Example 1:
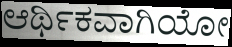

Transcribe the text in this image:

ಆರ್ಥಿಕವಾಗಿಯೋ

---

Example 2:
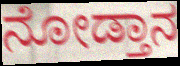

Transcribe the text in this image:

ನೋಡ್ತಾನ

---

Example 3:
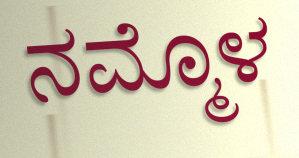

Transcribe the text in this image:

ನಮ್ಮೊಳ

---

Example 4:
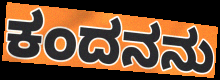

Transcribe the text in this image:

ಕಂದನನು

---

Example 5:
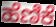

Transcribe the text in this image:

ಹೆಣಿಕೆ